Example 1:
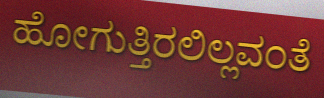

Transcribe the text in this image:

ಹೋಗುತ್ತಿರಲಿಲ್ಲವಂತೆ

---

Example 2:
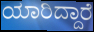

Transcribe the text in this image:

ಯಾರಿದ್ದಾರೆ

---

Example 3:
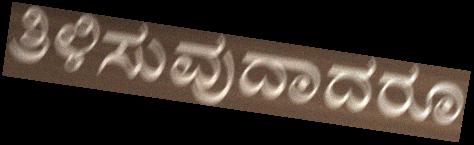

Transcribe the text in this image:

ತಿಳಿಸುವುದಾದರೂ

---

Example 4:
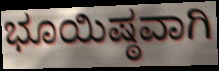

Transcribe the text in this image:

ಭೂಯಿಷ್ಠವಾಗಿ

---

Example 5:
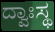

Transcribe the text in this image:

ದ್ವಾಃಸ್ಥ